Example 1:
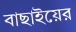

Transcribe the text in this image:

বাছাইয়ের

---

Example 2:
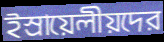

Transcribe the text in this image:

ইস্রায়েলীয়দের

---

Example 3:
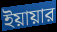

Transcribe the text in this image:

ইয়ায়ার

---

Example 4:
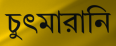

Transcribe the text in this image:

চুৎমারানি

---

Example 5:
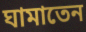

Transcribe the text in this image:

ঘামাতেন